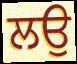
ਲਉ